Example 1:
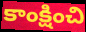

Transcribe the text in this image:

కాంక్షించి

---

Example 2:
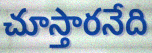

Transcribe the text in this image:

చూస్తారనేది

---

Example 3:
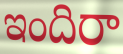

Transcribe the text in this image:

ఇందిరా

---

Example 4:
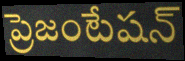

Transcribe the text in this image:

ప్రెజంటేషన్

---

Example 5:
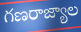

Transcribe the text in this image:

గణరాజ్యాల